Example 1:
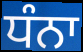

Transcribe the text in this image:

ਧੰਨਾ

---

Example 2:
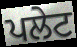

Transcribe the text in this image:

ਪਲੇਟ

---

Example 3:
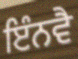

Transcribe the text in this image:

ਇੰਨਵੈ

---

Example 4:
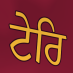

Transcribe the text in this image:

ਟੇਰਿ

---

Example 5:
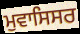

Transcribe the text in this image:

ਮੁਵਾਸਿਸਰ